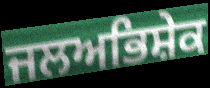
ਜਲਅਭਿਸ਼ੇਕ